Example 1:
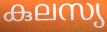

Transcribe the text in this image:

കുലസ്യ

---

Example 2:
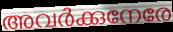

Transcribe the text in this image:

അവർക്കുനേരേ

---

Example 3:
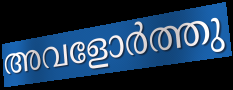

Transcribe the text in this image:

അവളോർത്തു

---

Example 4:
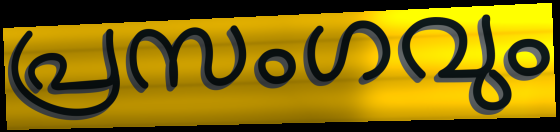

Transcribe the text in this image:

പ്രസംഗവും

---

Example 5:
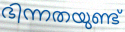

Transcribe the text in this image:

ഭിന്നതയുണ്ട്